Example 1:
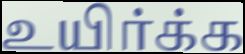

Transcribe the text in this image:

உயிர்க்க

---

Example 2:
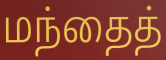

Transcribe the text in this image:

மந்தைத்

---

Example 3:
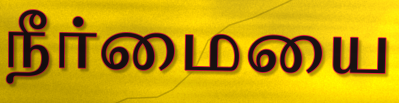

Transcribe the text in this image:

நீர்மையை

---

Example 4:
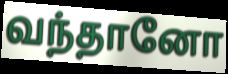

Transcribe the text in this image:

வந்தானோ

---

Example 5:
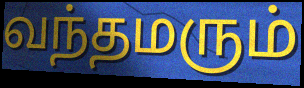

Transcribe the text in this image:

வந்தமரும்